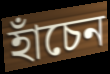
হাঁচেন